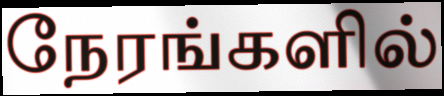
நேரங்களில்